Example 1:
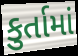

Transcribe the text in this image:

કુર્તામાં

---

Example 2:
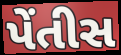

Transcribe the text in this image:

પેંતીસ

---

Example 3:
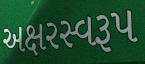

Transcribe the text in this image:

અક્ષરસ્વરૂપ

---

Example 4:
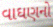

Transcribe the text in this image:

વાઘણનો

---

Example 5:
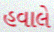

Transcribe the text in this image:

હવાલે